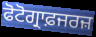
ਫੋਟੋਗ੍ਰਾਫ਼ਜਰਜ਼